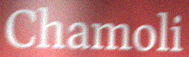
Chamoli